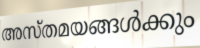
അസ്തമയങ്ങൾക്കും